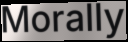
Morally